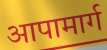
आपामार्ग